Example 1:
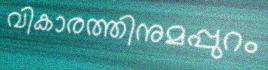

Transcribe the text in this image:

വികാരത്തിനുമപ്പുറം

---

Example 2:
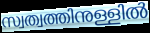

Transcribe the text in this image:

സ്വത്വത്തിനുള്ളിൽ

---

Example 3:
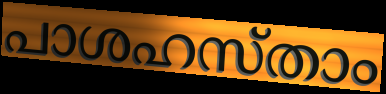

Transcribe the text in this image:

പാശഹസ്താം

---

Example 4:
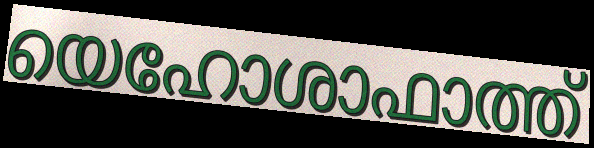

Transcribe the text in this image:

യെഹോശാഫാത്ത്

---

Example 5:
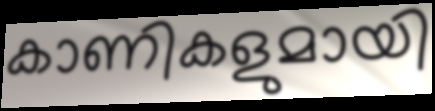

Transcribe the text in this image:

കാണികളുമായി